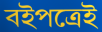
বইপত্রেই